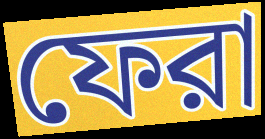
ফেরা